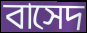
বাসেদ